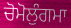
ਚੋਮੋਲੁੰਗਮਾ